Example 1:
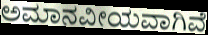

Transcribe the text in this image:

ಅಮಾನವೀಯವಾಗಿವೆ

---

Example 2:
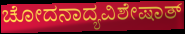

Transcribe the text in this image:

ಚೋದನಾದ್ಯವಿಶೇಷಾತ್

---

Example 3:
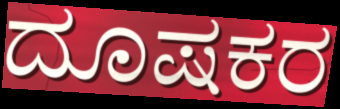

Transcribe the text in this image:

ದೂಷಕರ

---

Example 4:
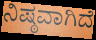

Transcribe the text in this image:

ನಿಷ್ಠವಾಗಿದೆ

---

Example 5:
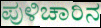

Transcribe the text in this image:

ಪುಳಿಚಾರಿನ